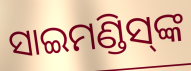
ସାଇମଣ୍ଡିସ୍‍ଙ୍କ